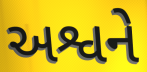
અશ્વને